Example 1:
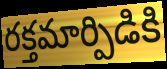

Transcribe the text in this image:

రక్తమార్పిడికి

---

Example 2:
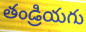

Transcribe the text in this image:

తండ్రియగు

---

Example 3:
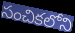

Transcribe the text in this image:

సంచికలోని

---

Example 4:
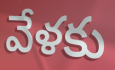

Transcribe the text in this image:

వేళకు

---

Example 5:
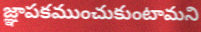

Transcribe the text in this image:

జ్ఞాపకముంచుకుంటామని